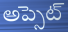
అప్సెట్